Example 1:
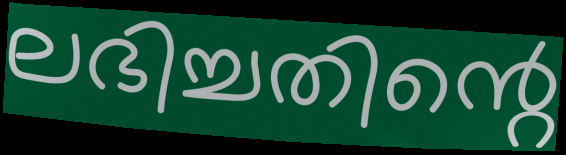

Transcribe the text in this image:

ലഭിച്ചതിന്റെ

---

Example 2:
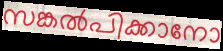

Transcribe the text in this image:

സങ്കൽപിക്കാനോ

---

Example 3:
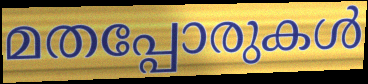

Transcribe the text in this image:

മതപ്പോരുകൾ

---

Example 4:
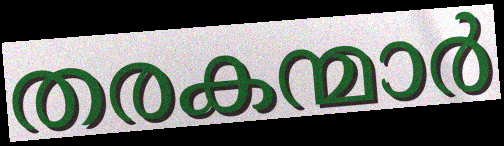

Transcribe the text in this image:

തരകന്മാർ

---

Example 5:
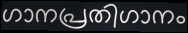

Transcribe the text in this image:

ഗാനപ്രതിഗാനം